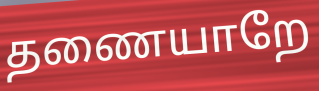
தணையாறே